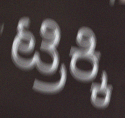
ಟ್ರಿಕ್ಕಿ